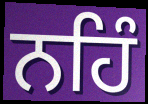
ਨਹਿੰ